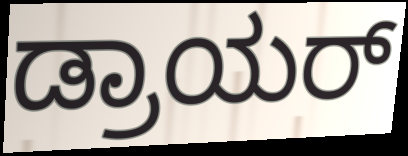
ಡ್ರಾಯರ್